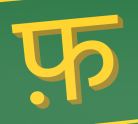
फ़